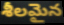
శీలమైన